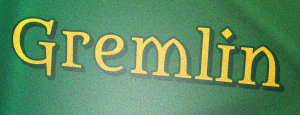
Gremlin